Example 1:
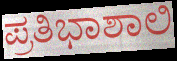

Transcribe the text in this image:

ಪ್ರತಿಭಾಶಾಲಿ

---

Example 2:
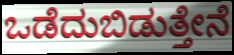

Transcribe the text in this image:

ಒಡೆದುಬಿಡುತ್ತೇನೆ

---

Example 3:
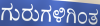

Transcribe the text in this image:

ಗುರುಗಳಿಗಿಂತ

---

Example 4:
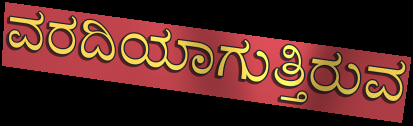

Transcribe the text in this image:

ವರದಿಯಾಗುತ್ತಿರುವ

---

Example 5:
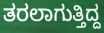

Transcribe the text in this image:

ತರಲಾಗುತ್ತಿದ್ದ